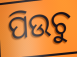
ପିଉଚୁ